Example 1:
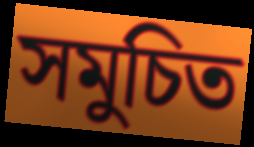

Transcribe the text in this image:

সমুচিত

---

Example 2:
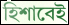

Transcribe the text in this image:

হিশাবেই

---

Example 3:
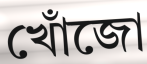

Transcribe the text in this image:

খোঁজো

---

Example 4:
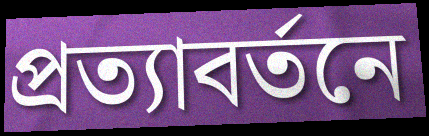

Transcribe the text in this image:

প্রত্যাবর্তনে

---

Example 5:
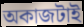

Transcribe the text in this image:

অকাজটাই